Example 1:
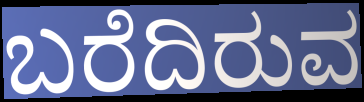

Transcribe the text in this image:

ಬರೆದಿರುವ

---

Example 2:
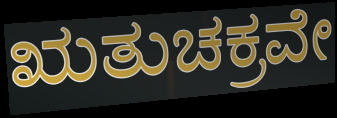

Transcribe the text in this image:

ಋತುಚಕ್ರವೇ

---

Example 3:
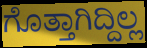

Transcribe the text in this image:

ಗೊತ್ತಾಗಿದ್ದಿಲ್ಲ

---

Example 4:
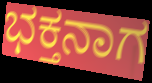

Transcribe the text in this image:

ಭಕ್ತನಾಗ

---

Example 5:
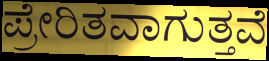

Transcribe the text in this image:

ಪ್ರೇರಿತವಾಗುತ್ತವೆ